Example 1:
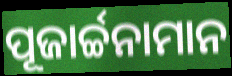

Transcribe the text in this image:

ପୂଜାର୍ଚ୍ଚନାମାନ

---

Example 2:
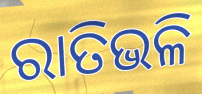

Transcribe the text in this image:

ରାତିଭଳି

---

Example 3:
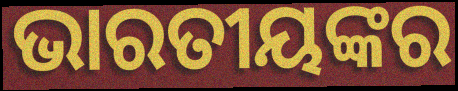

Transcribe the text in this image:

ଭାରତୀୟଙ୍କର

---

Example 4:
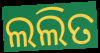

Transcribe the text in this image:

ଲଲିତ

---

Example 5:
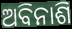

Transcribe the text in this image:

ଅବିନାଶି